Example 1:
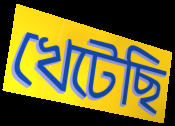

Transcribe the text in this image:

খেটেছি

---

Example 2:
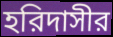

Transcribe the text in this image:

হরিদাসীর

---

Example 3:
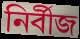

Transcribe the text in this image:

নির্বীজ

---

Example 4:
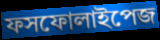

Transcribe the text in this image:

ফসফোলাইপেজ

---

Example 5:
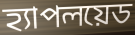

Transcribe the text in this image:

হ্যাপলয়েড